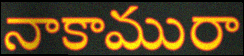
నాకామురా